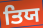
ਤਿਯ